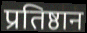
प्रतिष्ठान